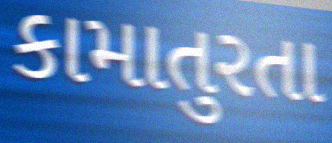
કામાતુરતા